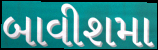
બાવીશમા